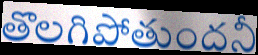
తొలగిపోతుందనీ